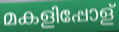
മകളിപ്പോള്